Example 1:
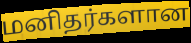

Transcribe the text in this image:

மனிதர்களான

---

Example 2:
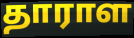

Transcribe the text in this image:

தாராள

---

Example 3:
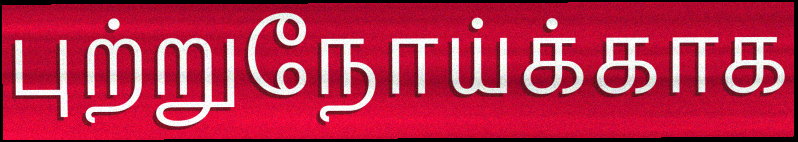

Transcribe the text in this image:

புற்றுநோய்க்காக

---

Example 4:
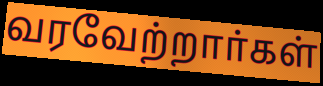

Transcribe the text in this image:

வரவேற்றார்கள்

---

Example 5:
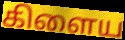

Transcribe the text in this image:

கிளைய